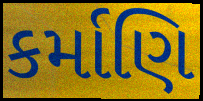
કર્માણિ